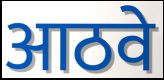
आठवे